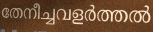
തേനീച്ചവളർത്തൽ